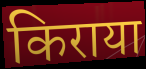
किराया